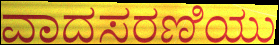
ವಾದಸರಣಿಯು